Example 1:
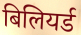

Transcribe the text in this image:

बिलियर्ड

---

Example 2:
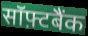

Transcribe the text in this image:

सॉफ़्टबैंक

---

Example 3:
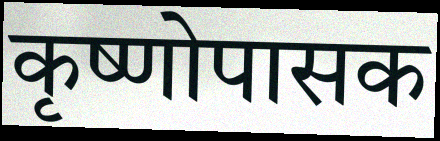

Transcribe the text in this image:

कृष्णोपासक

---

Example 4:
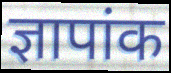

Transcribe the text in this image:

ज्ञापांक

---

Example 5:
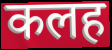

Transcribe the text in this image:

कलह